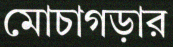
মোচাগড়ার